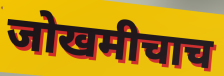
जोखमीचाच